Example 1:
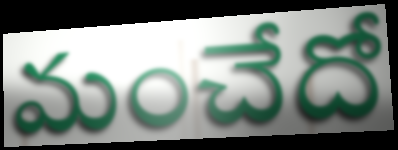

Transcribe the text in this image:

మంచేదో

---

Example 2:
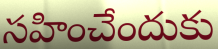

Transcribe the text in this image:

సహించేందుకు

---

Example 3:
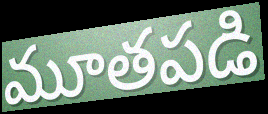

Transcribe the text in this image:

మూతపడి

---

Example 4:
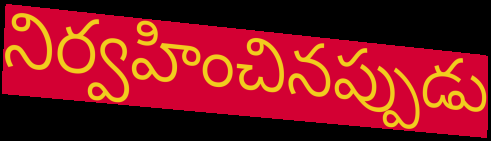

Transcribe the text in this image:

నిర్వహించినప్పుడు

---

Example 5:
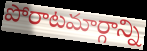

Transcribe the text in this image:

పోరాటమార్గాన్ని